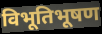
विभूतिभूषण